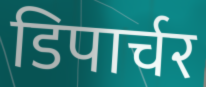
डिपार्चर